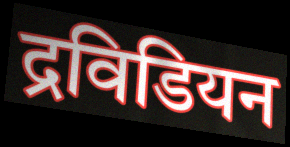
द्रविडियन